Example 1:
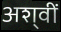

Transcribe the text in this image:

अश्वीं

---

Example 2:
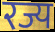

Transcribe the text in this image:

रज्य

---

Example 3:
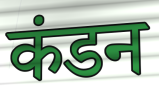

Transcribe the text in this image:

कंडन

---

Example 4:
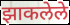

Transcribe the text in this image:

झाकलेले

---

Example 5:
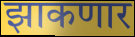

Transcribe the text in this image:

झाकणार